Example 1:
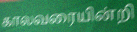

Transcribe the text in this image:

காலவரையின்றி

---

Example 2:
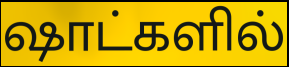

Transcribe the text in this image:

ஷாட்களில்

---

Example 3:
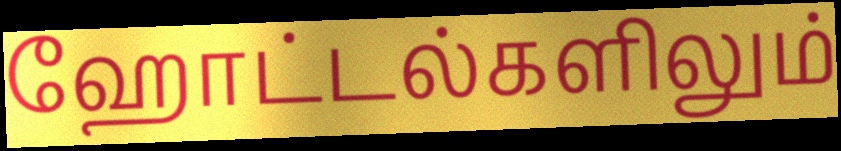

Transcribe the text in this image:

ஹோட்டல்களிலும்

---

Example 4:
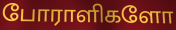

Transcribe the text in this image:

போராளிகளோ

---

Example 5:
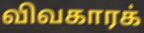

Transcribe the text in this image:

விவகாரக்